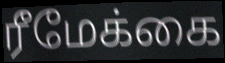
ரீமேக்கை